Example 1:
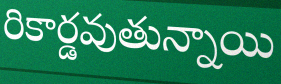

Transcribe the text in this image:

రికార్డవుతున్నాయి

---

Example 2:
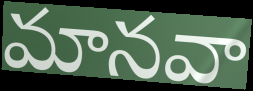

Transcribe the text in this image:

మానవా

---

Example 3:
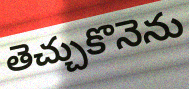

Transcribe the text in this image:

తెచ్చుకొనెను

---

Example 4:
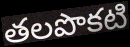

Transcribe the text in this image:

తలపొకటి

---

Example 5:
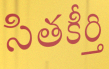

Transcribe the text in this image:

సితకీర్తి